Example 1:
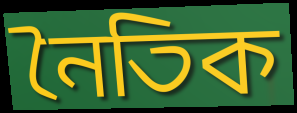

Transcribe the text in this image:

নৈতিক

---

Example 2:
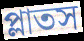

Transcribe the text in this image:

প্লাতস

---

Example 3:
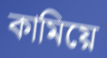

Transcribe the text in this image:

কামিয়ে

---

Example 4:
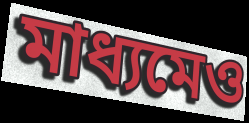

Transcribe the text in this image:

মাধ্যমেও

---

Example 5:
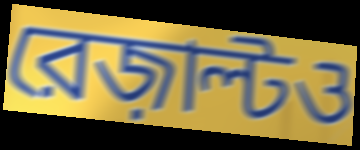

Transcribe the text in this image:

রেজ়াল্টও